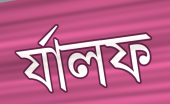
র্যালফ